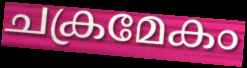
ചക്രമേകം